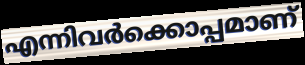
എന്നിവർക്കൊപ്പമാണ്